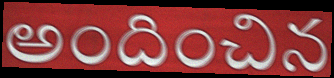
అందించిన